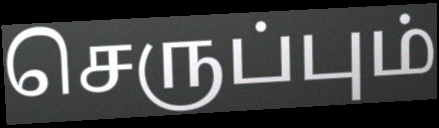
செருப்பும்